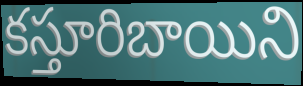
కస్తూరిబాయిని